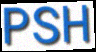
PSH